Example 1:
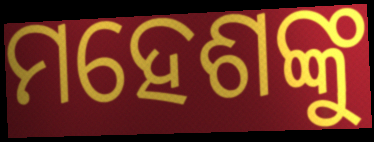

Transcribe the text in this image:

ମହେଶଙ୍କୁ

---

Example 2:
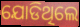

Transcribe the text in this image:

ଯୋଡିଥିଲେ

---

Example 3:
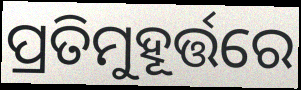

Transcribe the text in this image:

ପ୍ରତିମୁହୂର୍ତ୍ତରେ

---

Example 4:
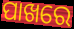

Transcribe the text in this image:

ପାଖରେ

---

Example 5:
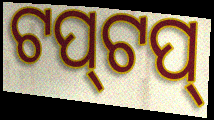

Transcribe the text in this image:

ଟପ୍‌ଟପ୍